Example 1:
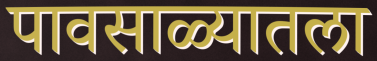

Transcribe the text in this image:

पावसाळ्यातला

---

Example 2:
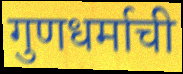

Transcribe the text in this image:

गुणधर्माची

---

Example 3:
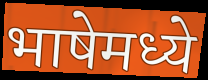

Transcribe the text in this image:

भाषेमध्ये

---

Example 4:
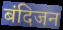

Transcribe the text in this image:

बंदिजन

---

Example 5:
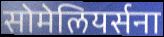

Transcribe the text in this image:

सोमेलियर्सना